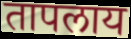
तापलाय